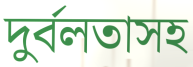
দুর্বলতাসহ